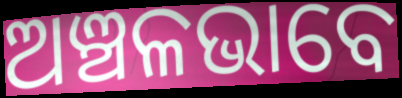
ଅଞ୍ଚଳଭାବେ